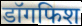
डॉगफिश